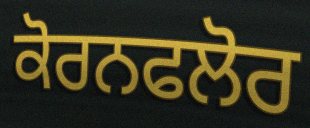
ਕੋਰਨਫਲੋਰ